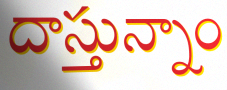
దాస్తున్నాం